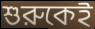
শুরুকেই